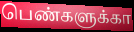
பெண்களுக்கா